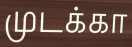
முடக்கா